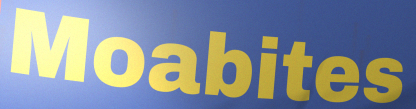
Moabites